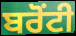
ਬਰੋਂਟੀ